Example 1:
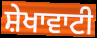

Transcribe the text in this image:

ਸ਼ੇਖਾਵਾਟੀ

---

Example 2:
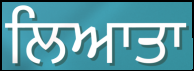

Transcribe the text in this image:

ਲਿਆਤਾ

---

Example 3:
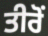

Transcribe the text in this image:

ਤੀਰੋਂ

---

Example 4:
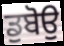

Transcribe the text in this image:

ਡੁਬੋਉ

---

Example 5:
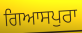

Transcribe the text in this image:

ਗਿਆਸਪੁਰਾ